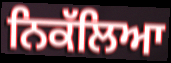
ਨਿਕੱਲਿਆ